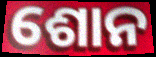
ଶୋନ